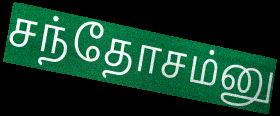
சந்தோசம்னு